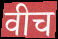
वीच